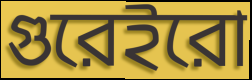
গুরেইরো